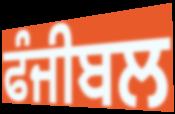
ਫੰਜੀਬਲ